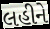
લહીને